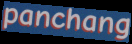
panchang